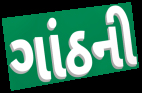
ગાંઠની